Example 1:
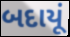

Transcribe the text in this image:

બદાયૂં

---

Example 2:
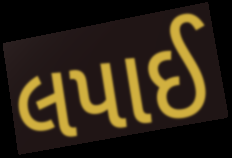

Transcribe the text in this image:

લપાઈ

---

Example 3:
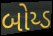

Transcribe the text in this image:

બોય્ડ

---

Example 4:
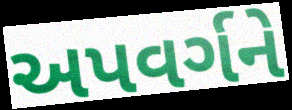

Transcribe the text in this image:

અપવર્ગને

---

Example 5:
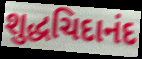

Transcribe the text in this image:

શુદ્ધચિદાનંદ